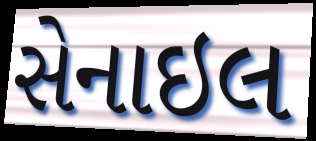
સેનાઇલ